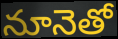
నూనెతో